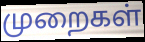
முறைகள்